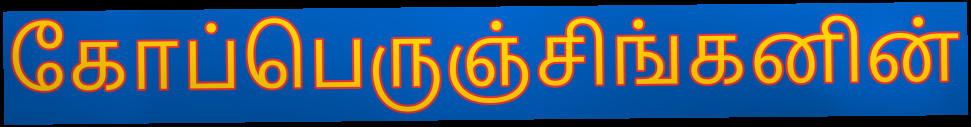
கோப்பெருஞ்சிங்கனின்